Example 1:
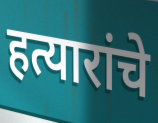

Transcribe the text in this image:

हत्यारांचे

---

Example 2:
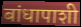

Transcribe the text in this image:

बांधापाशी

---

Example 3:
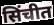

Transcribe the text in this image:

सिंचीत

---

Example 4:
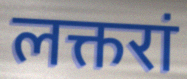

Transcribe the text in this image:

लक्तरां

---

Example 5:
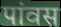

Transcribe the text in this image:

पांवस